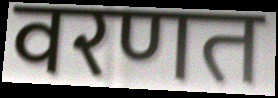
वरणत